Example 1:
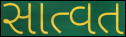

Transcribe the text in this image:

સાત્વત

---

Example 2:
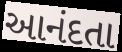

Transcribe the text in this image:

આનંદતા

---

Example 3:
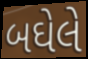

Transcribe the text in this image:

બઘેલે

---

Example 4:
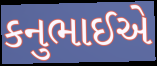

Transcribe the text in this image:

કનુભાઈએ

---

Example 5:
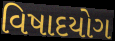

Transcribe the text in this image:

વિષાદયોગ